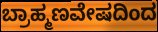
ಬ್ರಾಹ್ಮಣವೇಷದಿಂದ